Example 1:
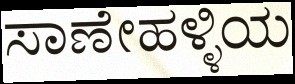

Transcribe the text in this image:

ಸಾಣೇಹಳ್ಳಿಯ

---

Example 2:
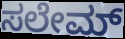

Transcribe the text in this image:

ಸಲೇಮ್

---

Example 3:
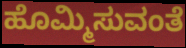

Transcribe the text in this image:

ಹೊಮ್ಮಿಸುವಂತೆ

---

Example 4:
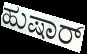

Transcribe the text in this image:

ಹುಷಾರ್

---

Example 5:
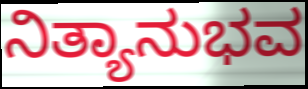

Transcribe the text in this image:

ನಿತ್ಯಾನುಭವ